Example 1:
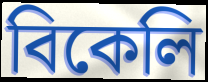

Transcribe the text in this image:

বিকেলি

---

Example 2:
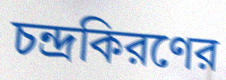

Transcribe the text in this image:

চন্দ্রকিরণের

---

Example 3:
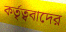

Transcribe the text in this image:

কর্তৃত্ববাদের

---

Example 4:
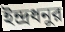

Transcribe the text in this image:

ইন্দ্রধনুর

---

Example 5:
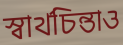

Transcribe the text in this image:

স্বার্থচিন্তাও